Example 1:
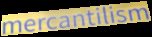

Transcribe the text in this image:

mercantilism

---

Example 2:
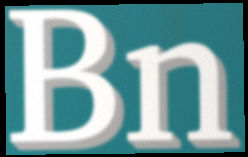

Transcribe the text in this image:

Bn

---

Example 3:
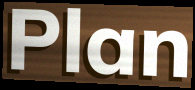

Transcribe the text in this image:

Plan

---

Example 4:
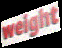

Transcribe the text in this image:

weight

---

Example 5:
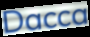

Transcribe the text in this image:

Dacca